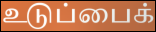
உடுப்பைக்